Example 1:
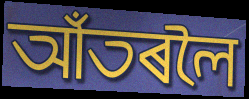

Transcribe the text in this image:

আঁতৰলৈ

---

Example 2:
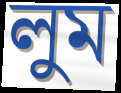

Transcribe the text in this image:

লুম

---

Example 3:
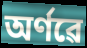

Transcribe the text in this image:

অৰ্ণৱে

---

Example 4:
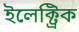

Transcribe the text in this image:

ইলেক্ট্ৰিক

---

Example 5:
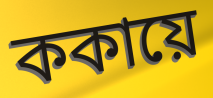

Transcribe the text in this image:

ককায়ে